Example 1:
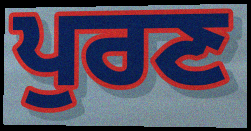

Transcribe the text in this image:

ਪੁਰਣ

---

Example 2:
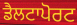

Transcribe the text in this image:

ਡੈਲਟਾਪੋਰਟ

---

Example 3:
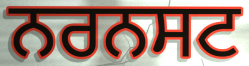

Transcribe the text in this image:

ਨਰਨਸਟ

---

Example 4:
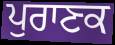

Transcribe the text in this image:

ਪੁਰਾਣਕ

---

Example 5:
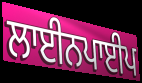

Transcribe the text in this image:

ਲਾਈਨਪਾਈਪ